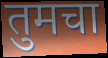
तुमचा